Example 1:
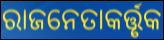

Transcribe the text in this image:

ରାଜନେତାକର୍ତ୍ତୃକ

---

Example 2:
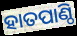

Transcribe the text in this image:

ହାତପାଣ୍ଠି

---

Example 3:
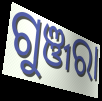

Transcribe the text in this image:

ଗୁଞ୍ଜରା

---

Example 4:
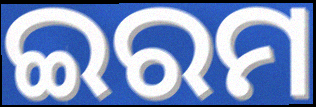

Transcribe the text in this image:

ଇରମ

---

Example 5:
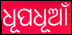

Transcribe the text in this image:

ଧୂପଧୂଆଁ